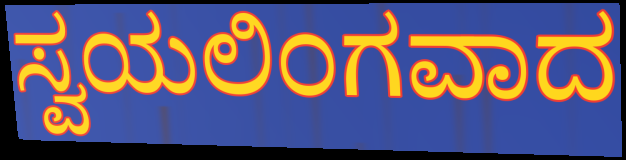
ಸ್ವಯಲಿಂಗವಾದ